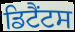
ਡਿਟੈਂਟਸ